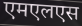
एमएलएस